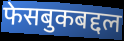
फेसबुकबद्दल